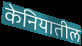
केनियातील